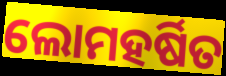
ଲୋମହର୍ଷିତ